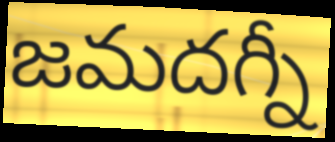
జమదగ్నీ